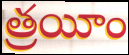
త్రయీం